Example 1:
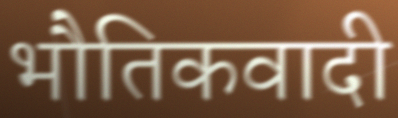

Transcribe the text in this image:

भौतिकवादी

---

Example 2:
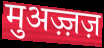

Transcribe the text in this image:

मुअज़्ज़ज़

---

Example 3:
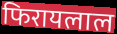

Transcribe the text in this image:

फिरायलाल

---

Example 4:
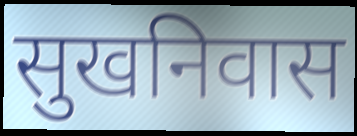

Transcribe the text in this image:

सुखनिवास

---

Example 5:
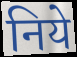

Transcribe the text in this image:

निये